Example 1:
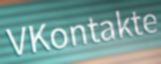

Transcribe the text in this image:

VKontakte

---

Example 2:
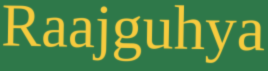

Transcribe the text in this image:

Raajguhya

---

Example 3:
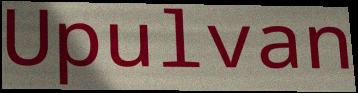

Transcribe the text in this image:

Upulvan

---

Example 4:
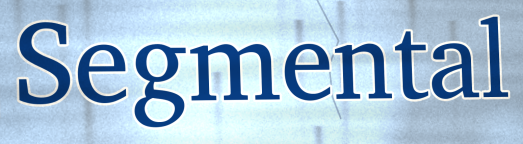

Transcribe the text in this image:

Segmental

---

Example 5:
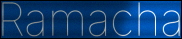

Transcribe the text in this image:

Ramacha